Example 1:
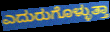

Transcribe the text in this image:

ಎದುರುಗೊಳ್ಳುತ್ತಾ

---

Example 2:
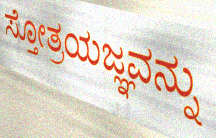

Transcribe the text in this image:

ಸ್ತೋತ್ರಯಜ್ಞವನ್ನು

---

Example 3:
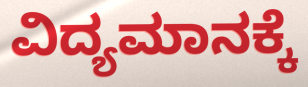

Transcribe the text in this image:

ವಿದ್ಯಮಾನಕ್ಕೆ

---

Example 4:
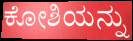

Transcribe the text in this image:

ಕೋಶಿಯನ್ನು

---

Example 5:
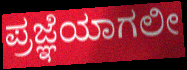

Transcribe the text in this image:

ಪ್ರಜ್ಞೆಯಾಗಲೀ